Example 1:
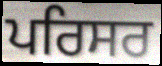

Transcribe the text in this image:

ਪਰਿਸਰ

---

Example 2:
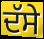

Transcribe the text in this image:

ਦੱਸੇ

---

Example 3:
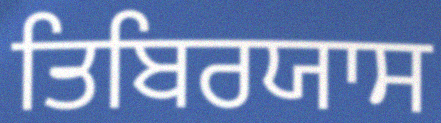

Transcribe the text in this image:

ਤਿਬਿਰਯਾਸ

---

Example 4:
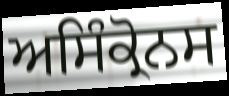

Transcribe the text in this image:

ਅਸਿੰਕ੍ਰੋਨਸ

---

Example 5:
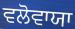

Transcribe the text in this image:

ਵਲੋਵਾਯਾ